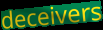
deceivers